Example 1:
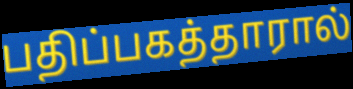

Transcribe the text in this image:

பதிப்பகத்தாரால்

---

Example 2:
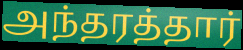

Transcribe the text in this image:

அந்தரத்தார்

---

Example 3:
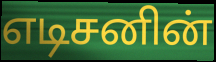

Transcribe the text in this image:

எடிசனின்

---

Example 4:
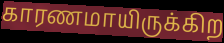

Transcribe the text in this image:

காரணமாயிருக்கிற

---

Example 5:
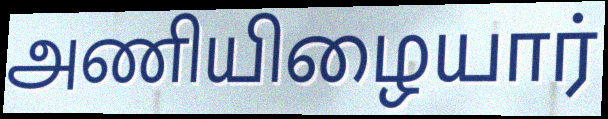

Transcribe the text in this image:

அணியிழையார்